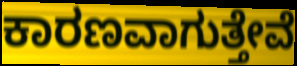
ಕಾರಣವಾಗುತ್ತೇವೆ